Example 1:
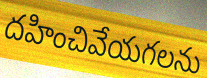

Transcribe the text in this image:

దహించివేయగలను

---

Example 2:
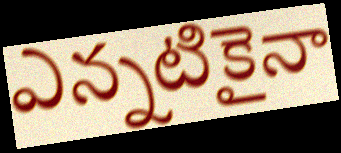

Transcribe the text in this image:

ఎన్నటికైనా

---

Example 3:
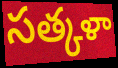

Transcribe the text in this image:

సత్కళా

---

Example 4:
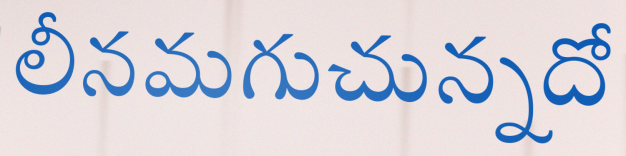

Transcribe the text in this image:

లీనమగుచున్నదో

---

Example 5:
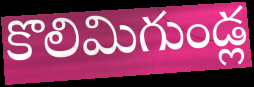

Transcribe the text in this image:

కొలిమిగుండ్ల